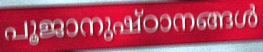
പൂജാനുഷ്ഠാനങ്ങൾ